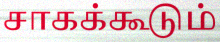
சாகக்கூடும்